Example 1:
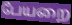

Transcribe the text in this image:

பேயறை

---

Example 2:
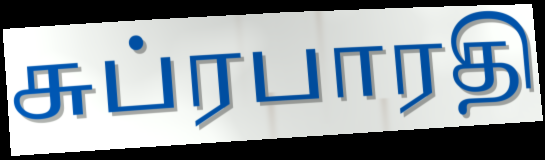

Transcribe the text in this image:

சுப்ரபாரதி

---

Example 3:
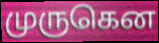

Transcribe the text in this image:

முருகென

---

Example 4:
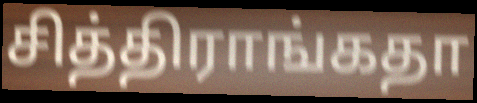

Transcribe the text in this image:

சித்திராங்கதா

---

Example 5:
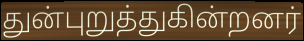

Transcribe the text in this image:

துன்புறுத்துகின்றனர்